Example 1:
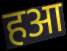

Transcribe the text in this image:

हआ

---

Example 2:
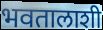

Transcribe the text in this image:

भवतालाशी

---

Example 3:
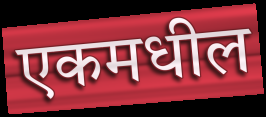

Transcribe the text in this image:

एकमधील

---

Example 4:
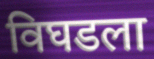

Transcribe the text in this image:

विघडला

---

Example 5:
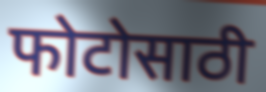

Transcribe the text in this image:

फोटोसाठी